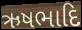
ઋષભાદિ